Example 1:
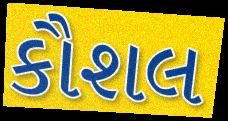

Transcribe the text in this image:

કૌશલ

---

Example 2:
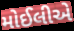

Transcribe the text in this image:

મોઈલીએ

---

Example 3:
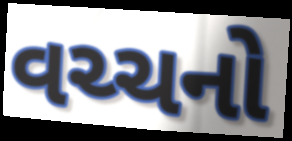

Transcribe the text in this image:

વચ્ચનો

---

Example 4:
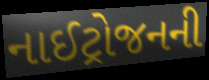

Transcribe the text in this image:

નાઈટ્રોજનની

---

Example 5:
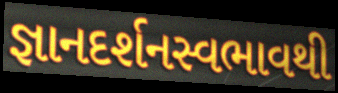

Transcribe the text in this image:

જ્ઞાનદર્શનસ્વભાવથી